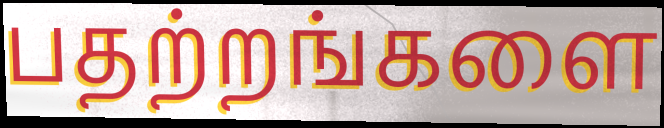
பதற்றங்களை